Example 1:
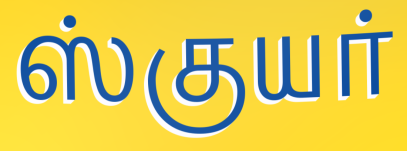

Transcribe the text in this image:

ஸ்குயர்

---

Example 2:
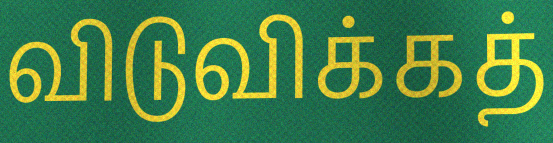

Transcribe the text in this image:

விடுவிக்கத்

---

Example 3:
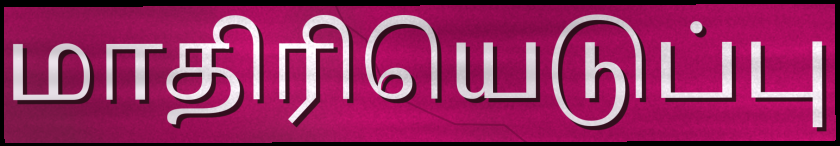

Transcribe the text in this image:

மாதிரியெடுப்பு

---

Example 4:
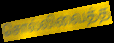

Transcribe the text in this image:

சொல்லிவைத்த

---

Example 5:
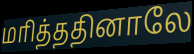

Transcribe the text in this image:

மரித்ததினாலே